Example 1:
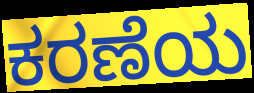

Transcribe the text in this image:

ಕರಣೆಯ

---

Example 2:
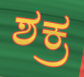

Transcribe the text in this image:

ಶಕ್ರ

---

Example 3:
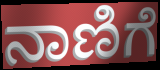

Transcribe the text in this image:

ನಾಣಿಗೆ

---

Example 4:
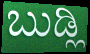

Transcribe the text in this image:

ಬುಡ್ಲಿ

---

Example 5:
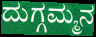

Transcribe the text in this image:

ದುಗ್ಗಮ್ಮನ